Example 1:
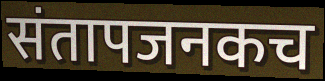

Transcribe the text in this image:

संतापजनकच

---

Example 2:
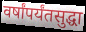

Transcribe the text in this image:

वर्षांपर्यंतसुद्धा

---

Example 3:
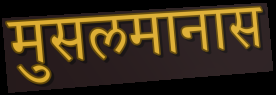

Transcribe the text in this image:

मुसलमानास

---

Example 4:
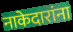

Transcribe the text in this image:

नाकेदारांना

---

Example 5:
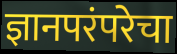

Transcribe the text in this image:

ज्ञानपरंपरेचा